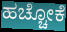
ಹಚ್ಚೋಕೆ